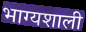
भाग्यशाली